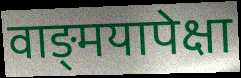
वाङ्मयापेक्षा